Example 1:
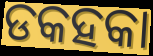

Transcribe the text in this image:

ଡକହକା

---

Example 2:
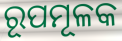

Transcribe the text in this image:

ରୂପମୂଳକ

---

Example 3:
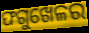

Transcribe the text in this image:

ଫଗୁଖେଳର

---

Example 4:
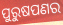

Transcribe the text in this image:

ପୁରୁଷପଣର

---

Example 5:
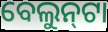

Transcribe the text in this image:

ବେଲୁନ୍‌ଟା